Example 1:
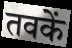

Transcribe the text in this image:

तवकें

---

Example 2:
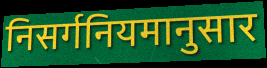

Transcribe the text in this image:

निसर्गनियमानुसार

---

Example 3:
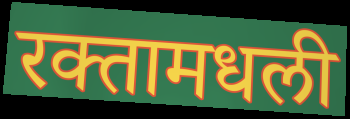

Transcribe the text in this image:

रक्तामधली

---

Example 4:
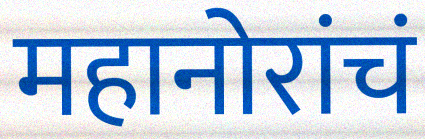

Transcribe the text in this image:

महानोरांचं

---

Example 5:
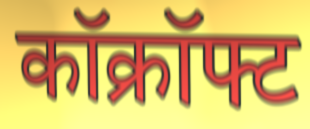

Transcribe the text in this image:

कॉक्रॉफ्ट